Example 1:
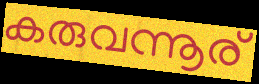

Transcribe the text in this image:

കരുവന്നൂര്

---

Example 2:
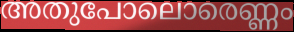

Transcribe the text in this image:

അതുപോലൊരെണ്ണം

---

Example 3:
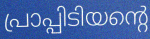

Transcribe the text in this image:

പ്രാപ്പിടിയന്റെ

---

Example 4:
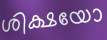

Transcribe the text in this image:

ശിക്ഷയോ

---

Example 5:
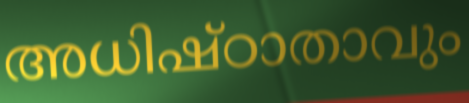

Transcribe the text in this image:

അധിഷ്ഠാതാവും